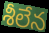
శీలేన